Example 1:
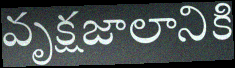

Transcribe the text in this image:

వృక్షజాలానికి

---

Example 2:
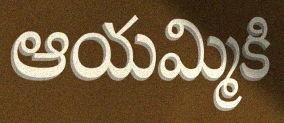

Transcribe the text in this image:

ఆయమ్మికి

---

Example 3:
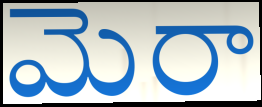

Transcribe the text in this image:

మెరా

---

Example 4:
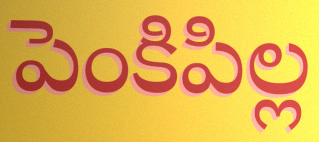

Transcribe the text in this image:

పెంకిపిల్ల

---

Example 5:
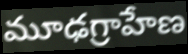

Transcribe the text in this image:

మూఢగ్రాహేణ